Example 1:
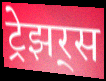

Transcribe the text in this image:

ट्रेझर्स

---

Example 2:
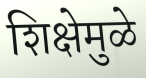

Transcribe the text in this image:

शिक्षेमुळे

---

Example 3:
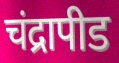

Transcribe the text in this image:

चंद्रापीड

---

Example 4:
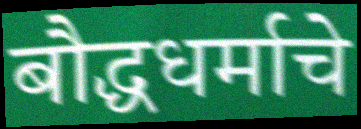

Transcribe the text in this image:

बौद्धधर्माचे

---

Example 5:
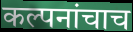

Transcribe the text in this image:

कल्पनांचाच